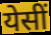
येसीं